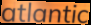
atlantic